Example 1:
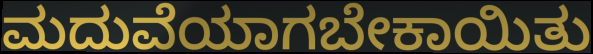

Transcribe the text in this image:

ಮದುವೆಯಾಗಬೇಕಾಯಿತು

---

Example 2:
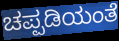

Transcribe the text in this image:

ಚಪ್ಪಡಿಯಂತೆ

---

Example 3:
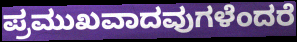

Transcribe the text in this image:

ಪ್ರಮುಖವಾದವುಗಳೆಂದರೆ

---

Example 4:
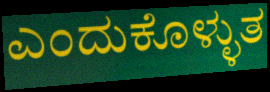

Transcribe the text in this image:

ಎಂದುಕೊಳ್ಳುತ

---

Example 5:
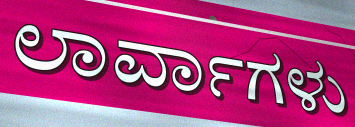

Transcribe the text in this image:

ಲಾರ್ವಾಗಳು